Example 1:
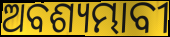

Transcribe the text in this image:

ଅବଶ୍ୟମ୍ଭାବୀ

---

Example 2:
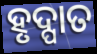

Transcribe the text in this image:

ହୃଦ୍ପାତ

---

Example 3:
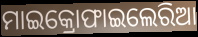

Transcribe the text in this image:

ମାଇକ୍ରୋଫାଇଲେରିଆ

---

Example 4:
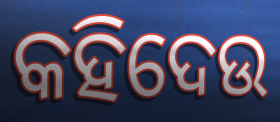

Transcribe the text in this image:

କହିଦେଉ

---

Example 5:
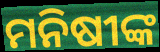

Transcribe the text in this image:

ମନିଷୀଙ୍କ